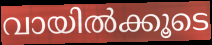
വായിൽക്കൂടെ